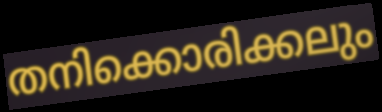
തനിക്കൊരിക്കലും